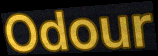
Odour